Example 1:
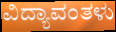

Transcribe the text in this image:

ವಿದ್ಯಾವಂತಳು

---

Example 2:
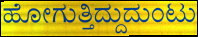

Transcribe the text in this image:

ಹೋಗುತ್ತಿದ್ದುದುಂಟು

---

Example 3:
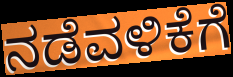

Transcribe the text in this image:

ನಡೆವಳಿಕೆಗೆ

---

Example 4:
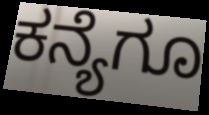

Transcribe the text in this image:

ಕನ್ಯೆಗೂ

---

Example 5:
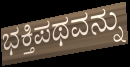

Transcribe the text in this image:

ಭಕ್ತಿಪಥವನ್ನು